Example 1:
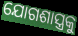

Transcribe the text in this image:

ଯୋଗଶାସ୍ତ୍ରକୁ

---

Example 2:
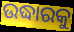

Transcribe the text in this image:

ଉଦ୍ଧାରକୁ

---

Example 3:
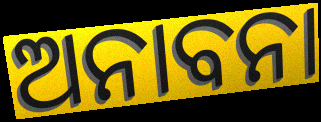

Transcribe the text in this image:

ଅନାବନା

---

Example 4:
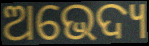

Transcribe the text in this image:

ଅଭେଦ୍ୟ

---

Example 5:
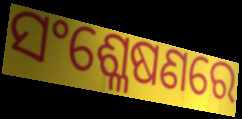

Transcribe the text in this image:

ସଂଶ୍ଳେଷଣରେ